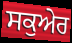
ਸਕੁਅੇਰ